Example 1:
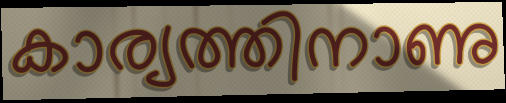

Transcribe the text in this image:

കാര്യത്തിനാണു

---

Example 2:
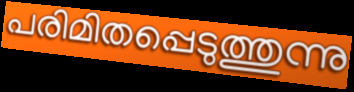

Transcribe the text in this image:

പരിമിതപ്പെടുത്തുന്നു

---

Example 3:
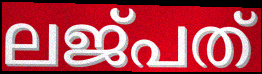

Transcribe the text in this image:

ലജ്പത്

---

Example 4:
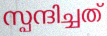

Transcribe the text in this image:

സ്പന്ദിച്ചത്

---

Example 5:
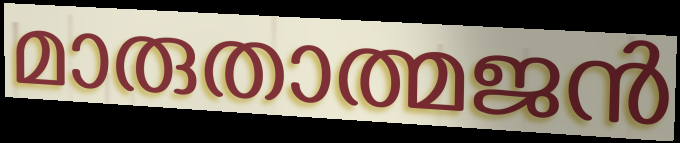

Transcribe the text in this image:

മാരുതാത്മജൻ